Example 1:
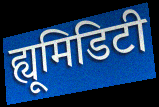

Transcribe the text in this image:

ह्यूमिडिटी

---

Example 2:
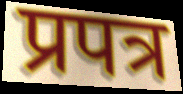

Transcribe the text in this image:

प्रपत्र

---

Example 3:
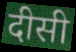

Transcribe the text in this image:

दीसी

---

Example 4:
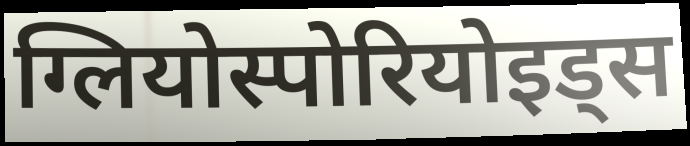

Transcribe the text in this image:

ग्लियोस्पोरियोइड्स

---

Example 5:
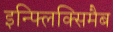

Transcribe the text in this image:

इन्फ्लिक्सिमैब